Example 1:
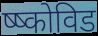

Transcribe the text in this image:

ष्ष्कोविड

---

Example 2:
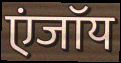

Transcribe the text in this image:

एंजॉय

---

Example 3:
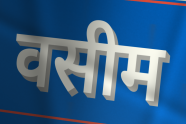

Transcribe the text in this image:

वसीम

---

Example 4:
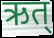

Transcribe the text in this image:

ऋत्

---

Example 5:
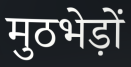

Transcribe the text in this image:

मुठभेड़ों